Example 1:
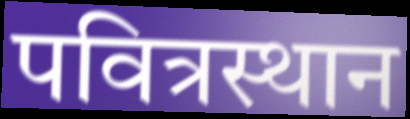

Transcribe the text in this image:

पवित्रस्‍थान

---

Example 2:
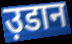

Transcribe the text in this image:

उ़डान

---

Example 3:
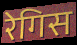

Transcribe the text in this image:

रेगिस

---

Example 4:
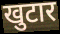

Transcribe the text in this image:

खुटार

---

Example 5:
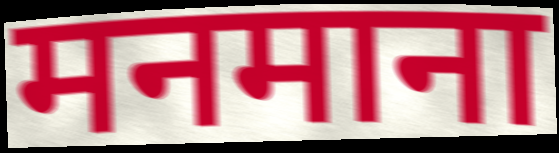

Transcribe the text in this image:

मनमाना